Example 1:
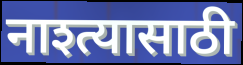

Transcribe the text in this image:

नाश्त्यासाठी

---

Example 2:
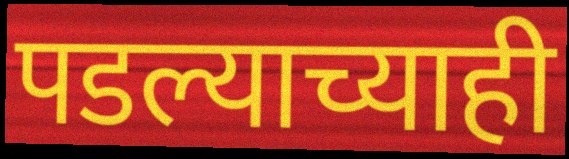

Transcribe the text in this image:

पडल्याच्याही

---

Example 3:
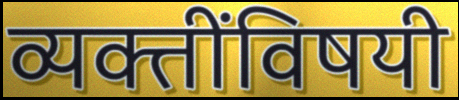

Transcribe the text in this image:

व्यक्तींविषयी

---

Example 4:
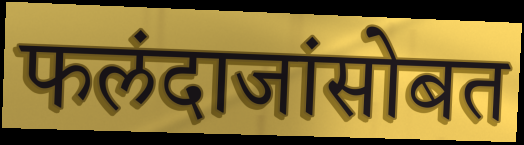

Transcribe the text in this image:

फलंदाजांसोबत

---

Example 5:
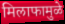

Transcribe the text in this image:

मिलाफामुळे